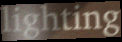
lighting